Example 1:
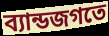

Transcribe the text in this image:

ব্যান্ডজগতে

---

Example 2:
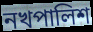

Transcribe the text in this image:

নখপালিশ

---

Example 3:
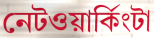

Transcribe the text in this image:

নেটওয়ার্কিংটা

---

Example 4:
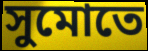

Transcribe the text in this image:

সুমোতে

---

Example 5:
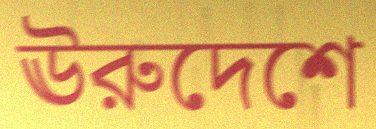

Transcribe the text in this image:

ঊরুদেশে